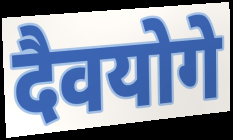
दैवयोगे